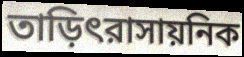
তাড়িৎরাসায়নিক